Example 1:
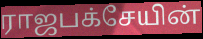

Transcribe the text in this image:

ராஜபக்சேயின்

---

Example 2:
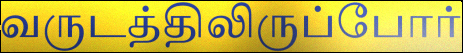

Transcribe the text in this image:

வருடத்திலிருப்போர்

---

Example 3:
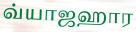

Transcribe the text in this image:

வ்யாஜஹார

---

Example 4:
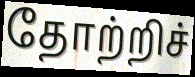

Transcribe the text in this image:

தோற்றிச்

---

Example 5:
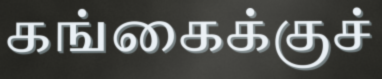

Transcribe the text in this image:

கங்கைக்குச்